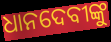
ଧାନଦେବୀଙ୍କୁ